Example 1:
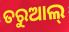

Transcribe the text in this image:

ତରୁଆଲ୍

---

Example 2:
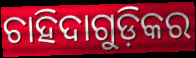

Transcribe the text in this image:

ଚାହିଦାଗୁଡ଼ିକର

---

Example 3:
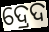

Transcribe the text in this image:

ଦ୍ରେଦ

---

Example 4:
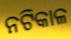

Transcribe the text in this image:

ନଟିକାଳ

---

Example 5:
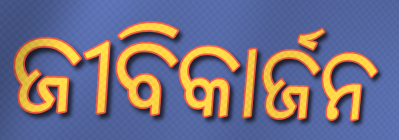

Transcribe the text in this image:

ଜୀବିକାର୍ଜନ